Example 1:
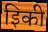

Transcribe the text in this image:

इिकी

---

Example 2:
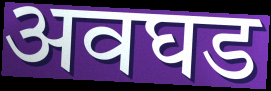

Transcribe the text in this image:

अवघड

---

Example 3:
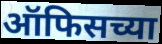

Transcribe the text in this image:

ऑफिसच्या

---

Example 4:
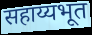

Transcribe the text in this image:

सहाय्यभूत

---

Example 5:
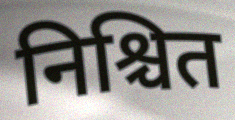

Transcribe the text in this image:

निश्चित